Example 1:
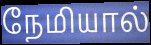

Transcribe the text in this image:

நேமியால்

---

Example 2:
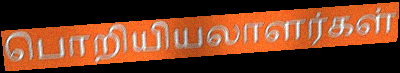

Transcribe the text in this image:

பொறியியலாளர்கள்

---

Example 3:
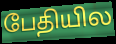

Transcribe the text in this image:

பேதியில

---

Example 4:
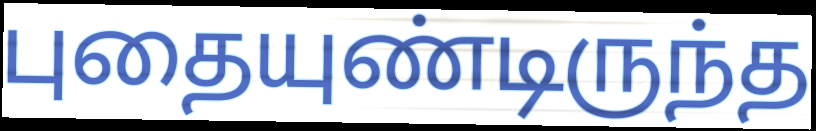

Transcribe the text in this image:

புதையுண்டிருந்த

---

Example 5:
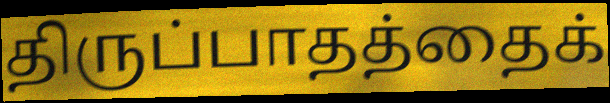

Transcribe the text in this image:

திருப்பாதத்தைக்